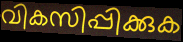
വികസിപ്പിക്കുക